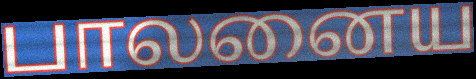
பாலனைய